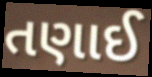
તણાઈ